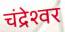
चंद्रेश्वर